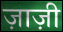
ज़ाज़ी